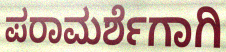
ಪರಾಮರ್ಶೆಗಾಗಿ